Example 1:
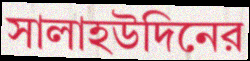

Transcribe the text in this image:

সালাহউদিনের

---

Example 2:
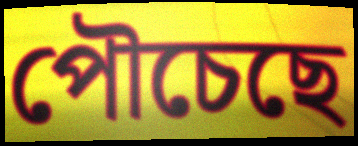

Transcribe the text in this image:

পৌচেছে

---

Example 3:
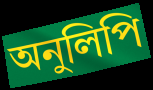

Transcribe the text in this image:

অনুলিপি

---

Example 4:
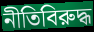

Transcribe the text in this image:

নীতিবিরুদ্ধ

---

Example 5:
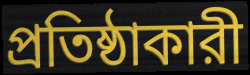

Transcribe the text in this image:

প্রতিষ্ঠাকারী